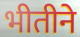
भीतीने